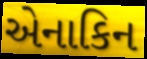
એનાકિન